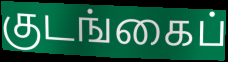
குடங்கைப்